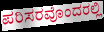
ಪರಿಸರವೊಂದರಲ್ಲಿ